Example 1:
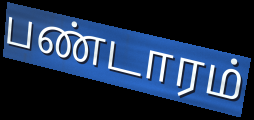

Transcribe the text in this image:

பண்டாரம்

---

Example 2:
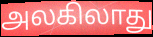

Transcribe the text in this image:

அலகிலாது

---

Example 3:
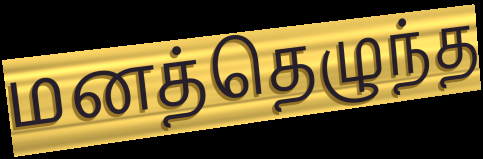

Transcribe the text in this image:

மனத்தெழுந்த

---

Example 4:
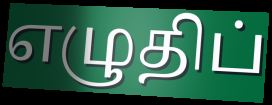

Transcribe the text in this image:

எழுதிப்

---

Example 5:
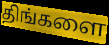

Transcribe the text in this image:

திங்களை